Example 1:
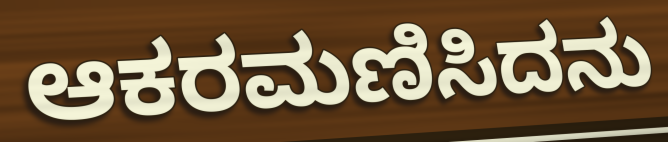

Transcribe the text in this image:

ಆಕರಮಣಿಸಿದನು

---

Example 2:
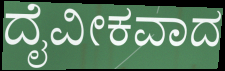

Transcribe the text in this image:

ದೈವೀಕವಾದ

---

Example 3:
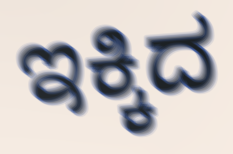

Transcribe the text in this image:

ಇಕ್ಕಿದ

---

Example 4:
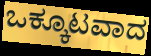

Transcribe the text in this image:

ಒಕ್ಕೂಟವಾದ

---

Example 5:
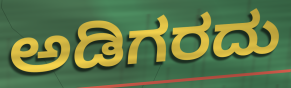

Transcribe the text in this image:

ಅಡಿಗರದು